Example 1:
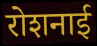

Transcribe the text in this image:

रोशनाई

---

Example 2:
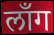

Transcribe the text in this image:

लाँग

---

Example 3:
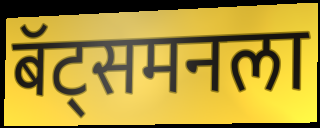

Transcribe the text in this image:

बॅट्समनला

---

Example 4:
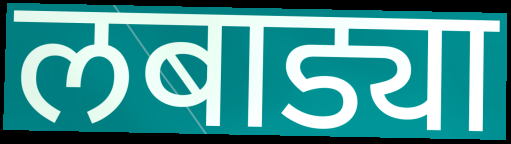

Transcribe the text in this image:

लबाड्या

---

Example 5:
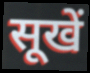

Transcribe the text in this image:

सूखें